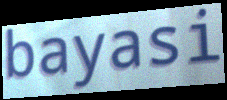
bayasi